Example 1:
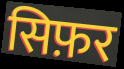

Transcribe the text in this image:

सिफ़र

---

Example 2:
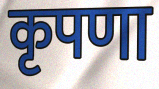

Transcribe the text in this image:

कृपणा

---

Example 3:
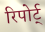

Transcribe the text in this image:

रिपोर्ट्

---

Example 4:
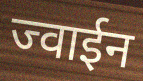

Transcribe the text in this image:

ज्वाईन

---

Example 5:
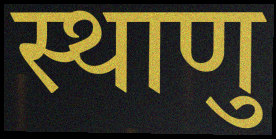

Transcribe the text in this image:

स्थाणु